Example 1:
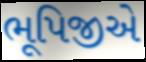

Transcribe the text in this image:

ભૂપિજીએ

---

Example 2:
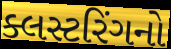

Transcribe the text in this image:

ક્લસ્ટરિંગનો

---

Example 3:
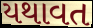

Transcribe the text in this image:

યથાવત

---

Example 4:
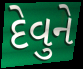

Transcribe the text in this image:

દેવુને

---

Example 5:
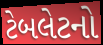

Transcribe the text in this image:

ટેબલેટનો